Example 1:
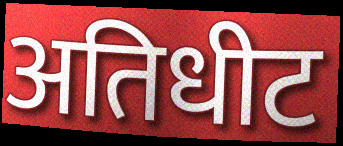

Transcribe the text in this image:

अतिधीट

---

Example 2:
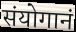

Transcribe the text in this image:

संयोगानं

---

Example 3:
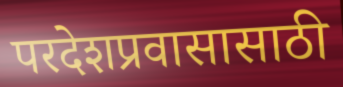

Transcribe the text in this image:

परदेशप्रवासासाठी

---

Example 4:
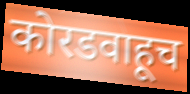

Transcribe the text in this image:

कोरडवाहूच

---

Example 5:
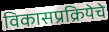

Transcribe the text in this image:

विकासप्रक्रियेचे